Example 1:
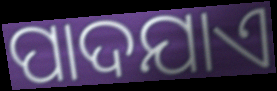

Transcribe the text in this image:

ପାଦଯାଏ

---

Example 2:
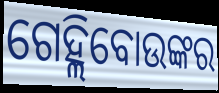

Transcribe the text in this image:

ଗେହ୍ଲିବୋଉଙ୍କର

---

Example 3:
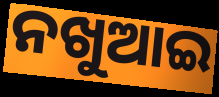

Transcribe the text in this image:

ନଖୁଆଇ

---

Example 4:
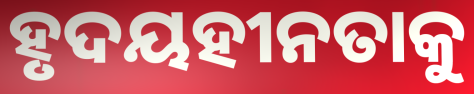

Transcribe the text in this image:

ହୃଦୟହୀନତାକୁ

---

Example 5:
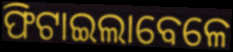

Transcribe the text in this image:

ଫିଟାଇଲାବେଳେ